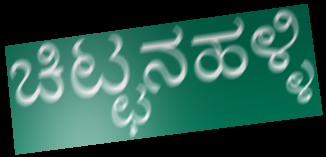
ಚಿಟ್ಟನಹಳ್ಳಿ